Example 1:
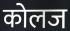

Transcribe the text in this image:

कोलज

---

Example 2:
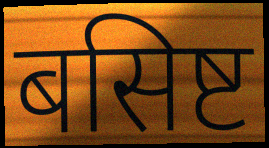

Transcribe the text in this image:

बसिष्ट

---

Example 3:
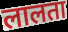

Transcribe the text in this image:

लालता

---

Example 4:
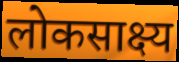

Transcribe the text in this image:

लोकसाक्ष्य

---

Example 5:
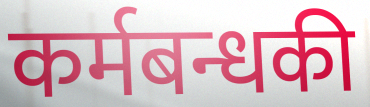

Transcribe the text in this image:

कर्मबन्धकी